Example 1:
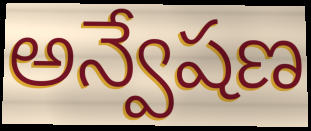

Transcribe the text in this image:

అన్వేషణ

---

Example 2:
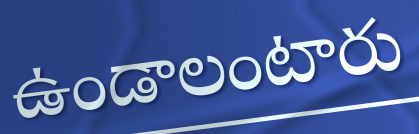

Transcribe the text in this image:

ఉండాలంటారు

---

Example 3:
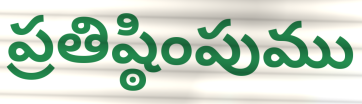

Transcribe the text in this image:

ప్రతిష్ఠింపుము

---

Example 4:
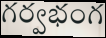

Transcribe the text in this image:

గర్వభంగ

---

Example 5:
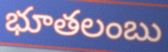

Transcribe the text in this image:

భూతలంబు